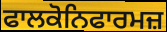
ਫਾਲਕੋਨਿਫਾਰਮਜ਼